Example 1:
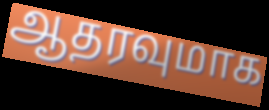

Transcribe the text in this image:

ஆதரவுமாக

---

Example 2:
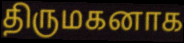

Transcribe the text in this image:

திருமகனாக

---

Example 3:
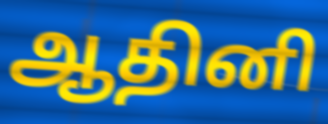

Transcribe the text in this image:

ஆதினி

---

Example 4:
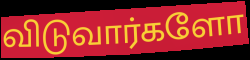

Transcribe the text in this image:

விடுவார்களோ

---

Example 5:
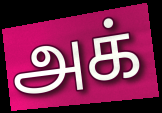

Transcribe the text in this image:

அக்